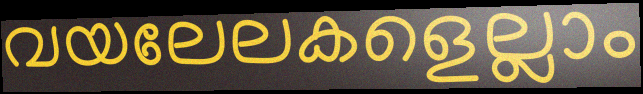
വയലേലകളെല്ലാം